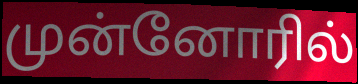
முன்னோரில்